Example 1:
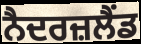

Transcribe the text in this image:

ਨੈਦਰਜ਼ਲੈਂਡ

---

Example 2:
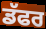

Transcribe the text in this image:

ਡੱਫਰ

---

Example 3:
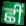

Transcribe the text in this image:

ਛੀਂ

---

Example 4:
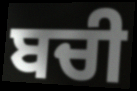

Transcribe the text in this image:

ਬਚੀ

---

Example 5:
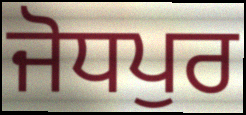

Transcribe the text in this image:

ਜੋਧਪੁਰ